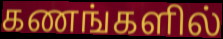
கணங்களில்